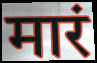
मारं